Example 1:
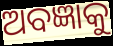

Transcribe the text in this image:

ଅବଜ୍ଞାକୁ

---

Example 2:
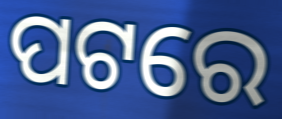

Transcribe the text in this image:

ପଟରେ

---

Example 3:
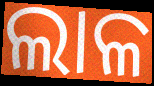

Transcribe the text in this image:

ଲାଳ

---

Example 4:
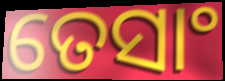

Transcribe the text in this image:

ତେସାଂ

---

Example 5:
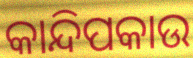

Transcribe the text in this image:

କାନ୍ଦିପକାଉ